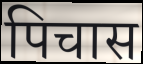
पिचास